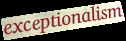
exceptionalism